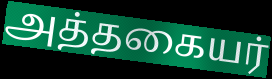
அத்தகையர்